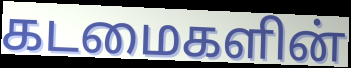
கடமைகளின்